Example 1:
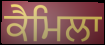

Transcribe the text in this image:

ਕੈਮਿਲਾ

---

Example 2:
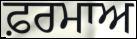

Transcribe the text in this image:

ਫ਼ਰਮਾਅ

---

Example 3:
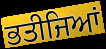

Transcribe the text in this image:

ਭਤੀਜਿਆਂ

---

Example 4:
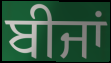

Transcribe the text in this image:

ਬੀਜਾਂ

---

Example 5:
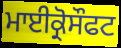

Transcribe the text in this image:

ਮਾਈਕ੍ਰੋਸੌਫਟ